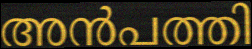
അൻപത്തി